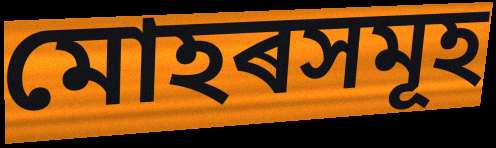
মোহৰসমূহ